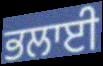
ਭਲਾਈ